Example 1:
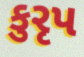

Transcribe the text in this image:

કુરૃપ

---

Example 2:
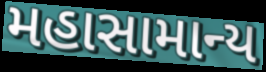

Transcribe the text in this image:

મહાસામાન્ય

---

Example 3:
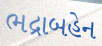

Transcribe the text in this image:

ભદ્રાબહેન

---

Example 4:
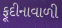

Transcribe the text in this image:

ફૂદીનાવાળી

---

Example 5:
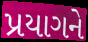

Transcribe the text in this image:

પ્રયાગને